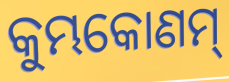
କୁମ୍ଭକୋଣମ୍